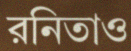
রনিতাও